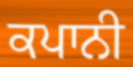
ਕਪਾਨੀ